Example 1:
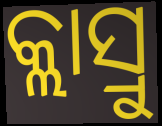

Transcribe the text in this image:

କ୍ଲାସ୍ରୁ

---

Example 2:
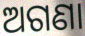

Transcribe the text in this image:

ଅଗଣା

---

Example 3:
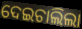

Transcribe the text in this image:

ଦେଇଚାଲିଲା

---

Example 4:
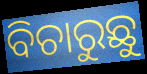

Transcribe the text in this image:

ବିଚାରୁଛୁ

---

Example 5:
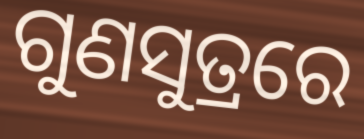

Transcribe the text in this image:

ଗୁଣସୁତ୍ରରେ